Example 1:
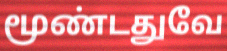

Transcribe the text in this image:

மூண்டதுவே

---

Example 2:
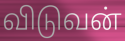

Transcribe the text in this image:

விடுவன்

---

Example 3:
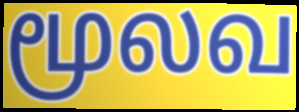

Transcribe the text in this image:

மூலவ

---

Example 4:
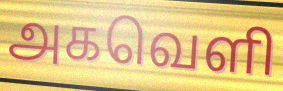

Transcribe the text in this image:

அகவெளி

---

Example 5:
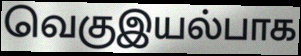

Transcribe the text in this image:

வெகுஇயல்பாக